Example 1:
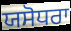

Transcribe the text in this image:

ਯਸੋਧਰਾ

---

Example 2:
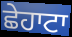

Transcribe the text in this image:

ਛੇਹਾਟਾ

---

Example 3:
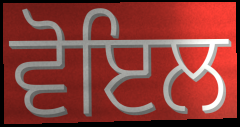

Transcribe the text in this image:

ਵੋਇਲ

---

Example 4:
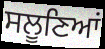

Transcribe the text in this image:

ਸਲੂਣਿਆਂ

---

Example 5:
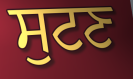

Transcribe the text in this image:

ਸੁਟਣ